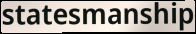
statesmanship